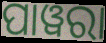
ପାୱରା